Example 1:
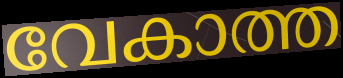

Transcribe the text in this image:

വേകാത്ത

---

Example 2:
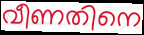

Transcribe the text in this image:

വീണതിനെ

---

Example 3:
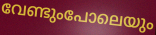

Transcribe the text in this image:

വേണ്ടുംപോലെയും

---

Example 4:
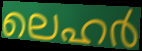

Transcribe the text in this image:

ലെഹർ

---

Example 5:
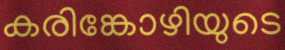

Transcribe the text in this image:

കരിങ്കോഴിയുടെ